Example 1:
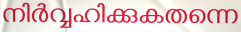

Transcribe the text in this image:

നിർവ്വഹിക്കുകതന്നെ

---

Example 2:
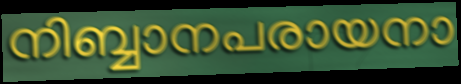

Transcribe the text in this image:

നിബ്ബാനപരായനാ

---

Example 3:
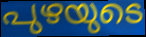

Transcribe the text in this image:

പുഴയുടെ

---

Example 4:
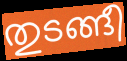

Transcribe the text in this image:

തുടങ്ങീ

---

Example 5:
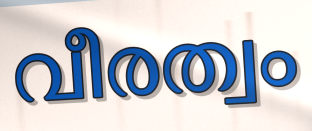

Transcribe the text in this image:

വീരത്വം